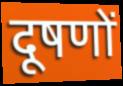
दूषणों